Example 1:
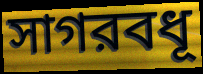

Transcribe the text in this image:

সাগরবধূ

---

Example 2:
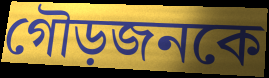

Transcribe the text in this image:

গৌড়জনকে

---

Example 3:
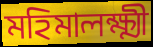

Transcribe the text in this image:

মহিমালক্ষ্মী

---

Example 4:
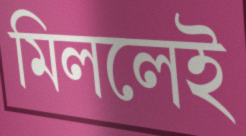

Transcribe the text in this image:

মিললেই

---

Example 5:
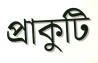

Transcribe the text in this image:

প্রাকুটি